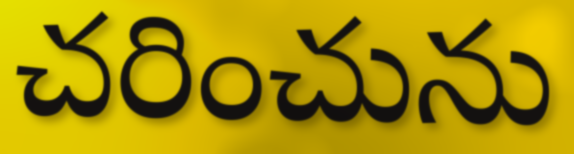
చరించును